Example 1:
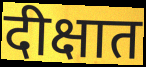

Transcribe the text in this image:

दीक्षात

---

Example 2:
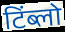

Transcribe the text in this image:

टिंब्लो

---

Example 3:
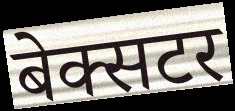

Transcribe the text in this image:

बेक्सटर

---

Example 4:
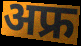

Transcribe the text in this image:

अफ्र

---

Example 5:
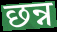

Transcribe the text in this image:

छन्न